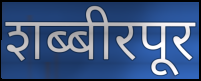
शब्बीरपूर